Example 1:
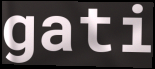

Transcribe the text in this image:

gati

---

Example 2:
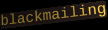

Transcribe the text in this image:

blackmailing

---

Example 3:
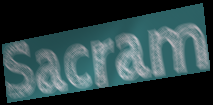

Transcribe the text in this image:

Sacram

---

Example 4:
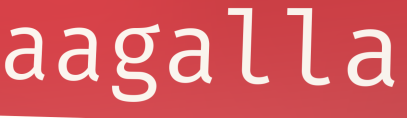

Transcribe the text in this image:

aagalla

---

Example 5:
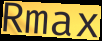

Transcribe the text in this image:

Rmax